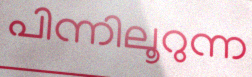
പിന്നിലൂറുന്ന